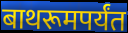
बाथरूमपर्यंत